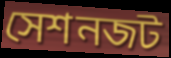
সেশনজট